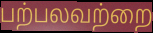
பற்பலவற்றை